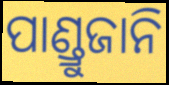
ପାଣ୍ଡ୍ରୁଜାନି